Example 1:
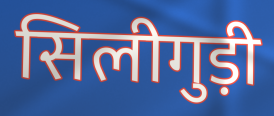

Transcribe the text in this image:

सिलीगुड़ी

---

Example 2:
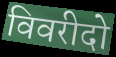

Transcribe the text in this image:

विवरीदो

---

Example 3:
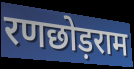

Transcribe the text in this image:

रणछोड़राम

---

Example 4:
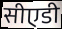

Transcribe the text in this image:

सीएडी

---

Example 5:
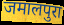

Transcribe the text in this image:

जमालपुरा